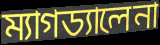
ম্যাগড্যালেনা